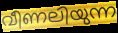
വീണലിയുന്ന